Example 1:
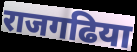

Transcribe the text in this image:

राजगढिया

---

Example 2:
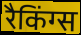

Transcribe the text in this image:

रैकिंग्स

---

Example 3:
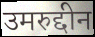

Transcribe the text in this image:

उमरुद्दीन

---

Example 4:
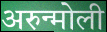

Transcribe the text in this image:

अरुन्मोली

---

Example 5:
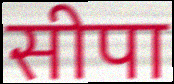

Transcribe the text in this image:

सीपा